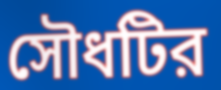
সৌধটির